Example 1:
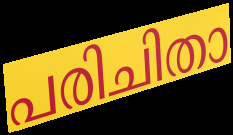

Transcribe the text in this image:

പരിചിതാ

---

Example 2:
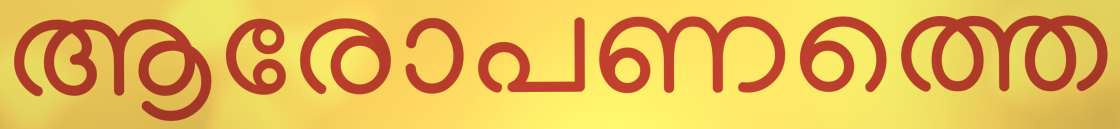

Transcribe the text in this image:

ആരോപണത്തെ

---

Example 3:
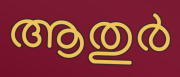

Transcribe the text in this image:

ആതുർ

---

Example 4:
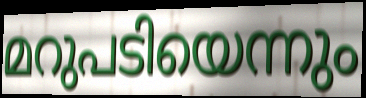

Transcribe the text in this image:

മറുപടിയെന്നും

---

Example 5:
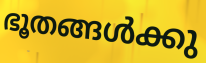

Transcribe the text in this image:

ഭൂതങ്ങൾക്കു